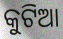
କୁଟିଆ